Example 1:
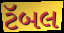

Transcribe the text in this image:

ટૅબલ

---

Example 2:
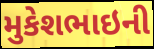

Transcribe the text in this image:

મુકેશભાઇની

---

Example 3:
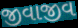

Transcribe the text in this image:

જીવાજીવ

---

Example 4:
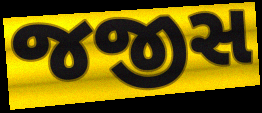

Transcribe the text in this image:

જજીસ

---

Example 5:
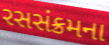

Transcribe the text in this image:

રસસંક્રમના